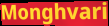
Monghvari